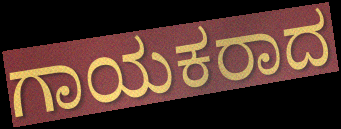
ಗಾಯಕರಾದ